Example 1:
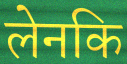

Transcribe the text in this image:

लेनकि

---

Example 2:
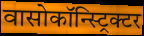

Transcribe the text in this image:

वासोकॉन्स्ट्रिक्टर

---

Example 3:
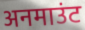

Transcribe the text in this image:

अनमाउंट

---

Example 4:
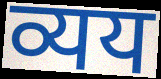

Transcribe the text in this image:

व्यय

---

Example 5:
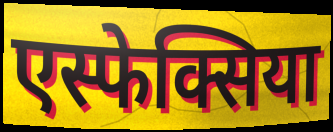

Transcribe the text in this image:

एस्फेक्सिया